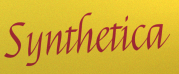
Synthetica